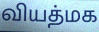
வியத்மக